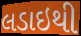
લડાઇથી